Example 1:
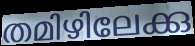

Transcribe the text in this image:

തമിഴിലേക്കു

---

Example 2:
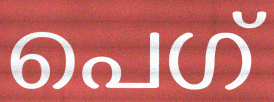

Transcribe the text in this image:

പെഗ്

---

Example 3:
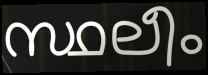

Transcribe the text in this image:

സ്ഥലീം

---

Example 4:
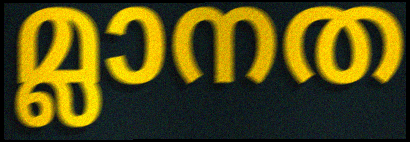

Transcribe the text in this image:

മ്ലാനത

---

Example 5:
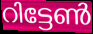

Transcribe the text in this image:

റിട്ടേൺ